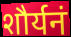
शौर्यनं